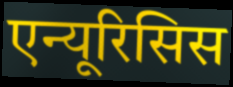
एन्यूरिसिस